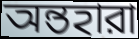
অন্তহারা